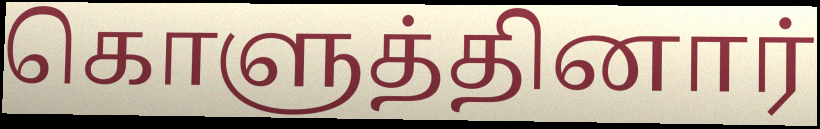
கொளுத்தினார்